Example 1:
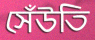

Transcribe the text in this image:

সেঁউতি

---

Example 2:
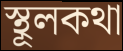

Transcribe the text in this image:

স্থূলকথা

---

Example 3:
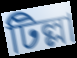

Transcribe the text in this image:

টিল্লা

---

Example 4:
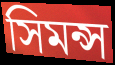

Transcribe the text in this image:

সিমন্স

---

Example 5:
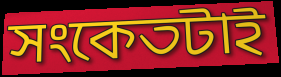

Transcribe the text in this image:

সংকেতটাই